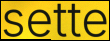
sette